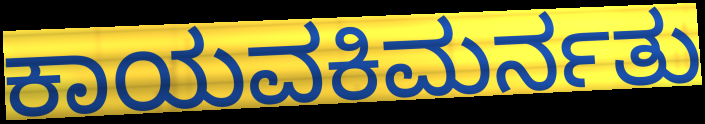
ಕಾಯವಕಿಮರ್ನತು